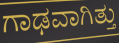
ಗಾಢವಾಗಿತ್ತು